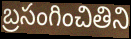
బ్రసంగించితిని